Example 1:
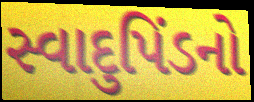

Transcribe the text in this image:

સ્વાદુપિંડનો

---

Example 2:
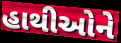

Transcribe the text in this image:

હાથીઓને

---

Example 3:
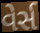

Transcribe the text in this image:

વેર્સ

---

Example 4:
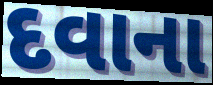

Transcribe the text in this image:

દવાના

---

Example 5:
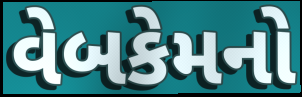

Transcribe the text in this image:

વેબકેમનો